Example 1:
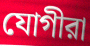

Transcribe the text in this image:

যোগীরা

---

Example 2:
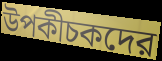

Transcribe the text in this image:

উপকীচকদের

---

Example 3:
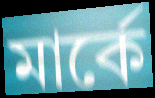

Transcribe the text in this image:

মার্কে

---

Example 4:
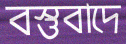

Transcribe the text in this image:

বস্তুবাদে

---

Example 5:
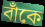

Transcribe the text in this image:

বাঁকে